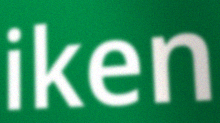
iken